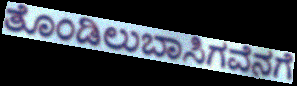
ತೊಂಡಿಲುಬಾಸಿಗವೆನಗೆ